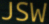
JSW